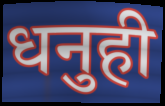
धनुही